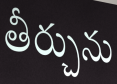
తీర్చును